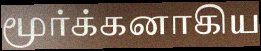
மூர்க்கனாகிய